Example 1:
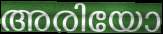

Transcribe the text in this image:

അരിയോ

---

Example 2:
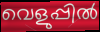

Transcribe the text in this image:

വെളുപ്പിൽ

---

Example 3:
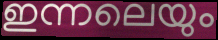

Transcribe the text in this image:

ഇന്നലെയും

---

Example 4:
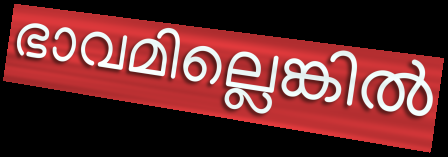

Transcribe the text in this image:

ഭാവമില്ലെങ്കിൽ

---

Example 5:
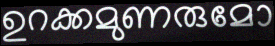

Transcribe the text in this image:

ഉറക്കമുണരുമോ